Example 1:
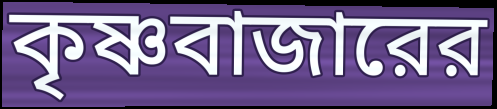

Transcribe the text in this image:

কৃষ্ণবাজারের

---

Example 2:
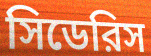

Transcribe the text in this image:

সিডেরিস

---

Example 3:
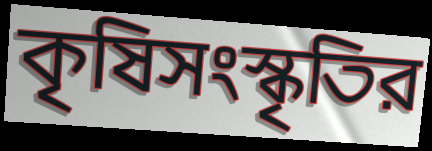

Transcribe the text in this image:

কৃষিসংস্কৃতির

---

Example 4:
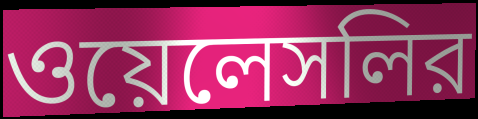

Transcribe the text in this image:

ওয়েলেসলির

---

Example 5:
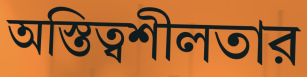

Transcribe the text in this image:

অস্তিত্বশীলতার